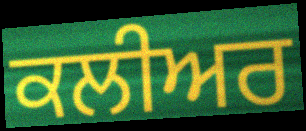
ਕਲੀਅਰ